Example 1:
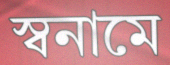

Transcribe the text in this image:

স্বনামে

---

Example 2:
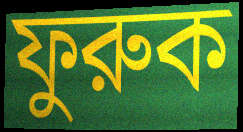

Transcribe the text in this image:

ফুরুক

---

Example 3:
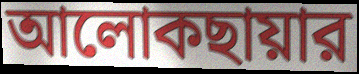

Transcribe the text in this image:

আলোকছায়ার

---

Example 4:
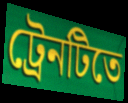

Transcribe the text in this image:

ট্রেনটিতে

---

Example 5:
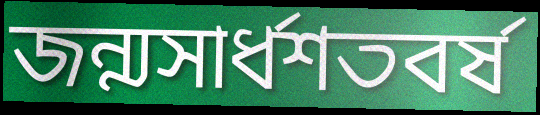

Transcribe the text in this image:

জন্মসার্ধশতবর্ষ